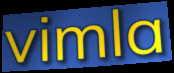
vimla